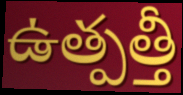
ఉత్పత్తీ